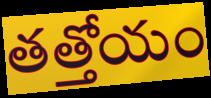
తత్తోయం